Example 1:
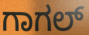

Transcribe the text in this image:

ಗಾಗಲ್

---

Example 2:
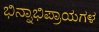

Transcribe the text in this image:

ಭಿನ್ನಾಭಿಪ್ರಾಯಗಳ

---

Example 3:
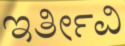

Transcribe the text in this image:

ಇರ್ತೀವಿ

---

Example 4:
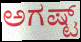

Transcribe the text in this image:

ಅಗಷ್ಟ್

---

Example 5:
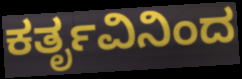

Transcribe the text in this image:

ಕರ್ತೃವಿನಿಂದ